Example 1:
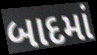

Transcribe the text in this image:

બાદમાં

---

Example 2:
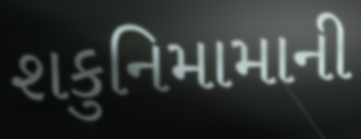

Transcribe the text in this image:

શકુનિમામાની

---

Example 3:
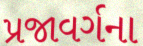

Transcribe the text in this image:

પ્રજાવર્ગના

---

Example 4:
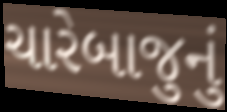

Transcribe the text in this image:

ચારેબાજુનું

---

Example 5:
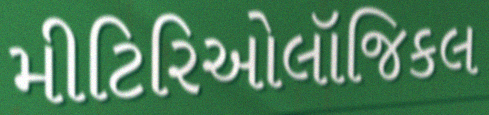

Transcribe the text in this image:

મીટિરિઓલૉજિકલ